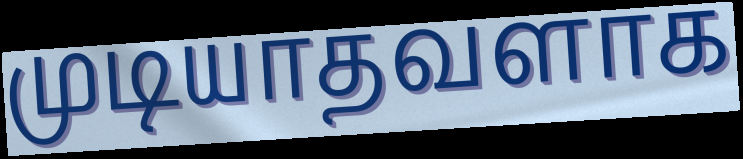
முடியாதவளாக